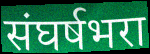
संघर्षभरा